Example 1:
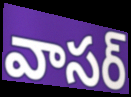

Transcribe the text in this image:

వాసర్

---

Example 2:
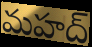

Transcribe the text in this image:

మహద్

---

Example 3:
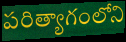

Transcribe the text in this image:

పరిత్యాగంలోని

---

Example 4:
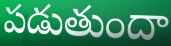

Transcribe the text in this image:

పడుతుందా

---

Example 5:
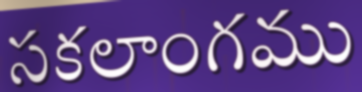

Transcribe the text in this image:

సకలాంగము